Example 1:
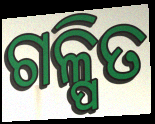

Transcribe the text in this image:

ଗଳ୍ପିତ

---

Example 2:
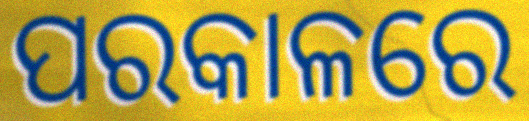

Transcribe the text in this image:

ପରକାଳରେ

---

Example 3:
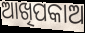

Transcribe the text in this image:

ଆଖିପକାଅ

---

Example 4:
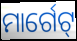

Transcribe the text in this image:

ମାର୍ଗେଟ୍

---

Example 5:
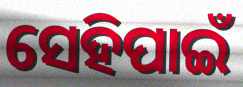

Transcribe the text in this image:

ସେହିପାଇଁ